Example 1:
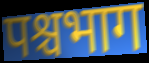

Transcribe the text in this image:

पश्चभाग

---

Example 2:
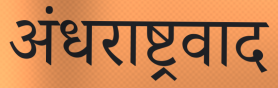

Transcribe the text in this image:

अंधराष्ट्रवाद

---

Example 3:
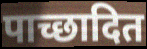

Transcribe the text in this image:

पाच्छादित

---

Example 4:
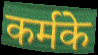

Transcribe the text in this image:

कर्मके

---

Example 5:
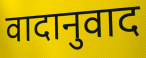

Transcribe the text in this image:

वादानुवाद